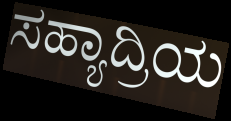
ಸಹ್ಯಾದ್ರಿಯ